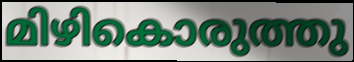
മിഴികൊരുത്തു